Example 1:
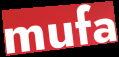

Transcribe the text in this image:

mufa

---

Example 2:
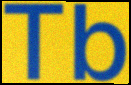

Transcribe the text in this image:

Tb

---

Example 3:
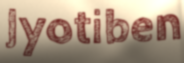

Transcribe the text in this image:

Jyotiben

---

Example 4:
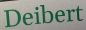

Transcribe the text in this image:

Deibert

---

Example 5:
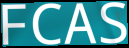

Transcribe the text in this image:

FCAS